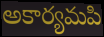
అకార్యమపి